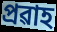
প্ৰৱাহ